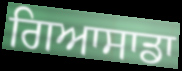
ਗਿਆਸਾਡਾ